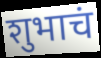
शुभाचं